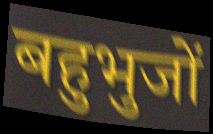
बहुभुजों